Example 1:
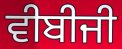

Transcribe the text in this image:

ਵੀਬੀਜੀ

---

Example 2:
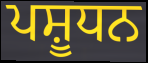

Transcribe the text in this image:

ਪਸ਼ੂਧਨ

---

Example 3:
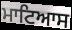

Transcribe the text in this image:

ਮਾਟਿਆਸ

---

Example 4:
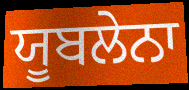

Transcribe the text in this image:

ਯੂਬਲੇਨਾ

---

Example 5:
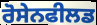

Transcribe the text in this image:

ਰੋਸੇਨਫੀਲਡ